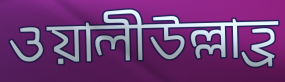
ওয়ালীউল্লাহ্র